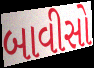
બાવીસો